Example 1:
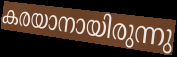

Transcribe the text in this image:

കരയാനായിരുന്നു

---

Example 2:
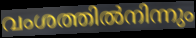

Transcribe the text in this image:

വംശത്തിൽനിന്നും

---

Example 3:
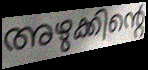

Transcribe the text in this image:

അഴുക്കിന്റെ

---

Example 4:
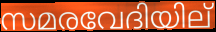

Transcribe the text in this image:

സമരവേദിയില്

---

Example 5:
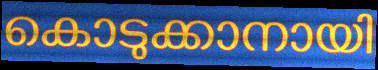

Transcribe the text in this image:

കൊടുക്കാനായി